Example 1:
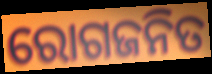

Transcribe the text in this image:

ରୋଗଜନିତ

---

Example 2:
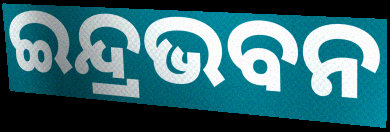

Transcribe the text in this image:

ଇନ୍ଦ୍ରଭବନ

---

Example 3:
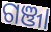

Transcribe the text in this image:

ଗଞ୍ଜା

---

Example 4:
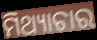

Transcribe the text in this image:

ମିଥ୍ୟାଚାର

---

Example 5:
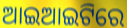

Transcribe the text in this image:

ଆଇଆଇଟିରେ